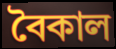
বৈকাল